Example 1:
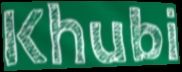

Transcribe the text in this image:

Khubi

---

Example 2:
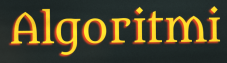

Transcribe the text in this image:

Algoritmi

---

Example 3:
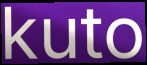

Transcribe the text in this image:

kuto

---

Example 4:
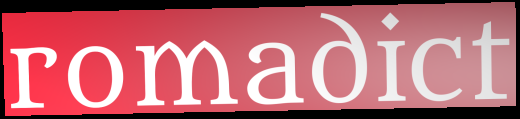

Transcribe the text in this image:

romadict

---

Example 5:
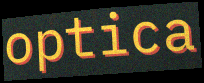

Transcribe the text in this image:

optica